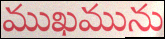
ముఖమును